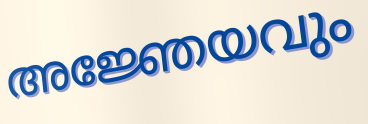
അജ്ഞേയവും